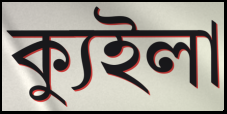
ক্যুইলা